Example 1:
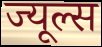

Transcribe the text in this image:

ज्यूल्स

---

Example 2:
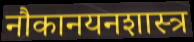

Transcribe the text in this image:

नौकानयनशास्त्र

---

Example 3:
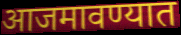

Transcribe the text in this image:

आजमावण्यात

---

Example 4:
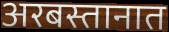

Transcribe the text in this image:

अरबस्तानात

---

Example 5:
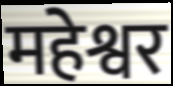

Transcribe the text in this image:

महेश्वर